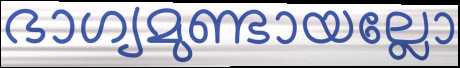
ഭാഗ്യമുണ്ടായല്ലോ